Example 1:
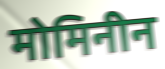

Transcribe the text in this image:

मोमिनीन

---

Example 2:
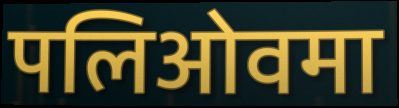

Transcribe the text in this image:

पलिओवमा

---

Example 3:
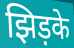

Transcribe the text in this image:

झिड़के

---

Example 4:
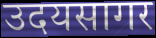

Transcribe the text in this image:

उदयसागर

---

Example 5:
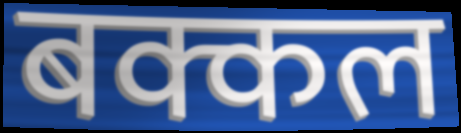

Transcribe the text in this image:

बक्कल